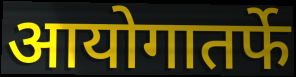
आयोगातर्फे